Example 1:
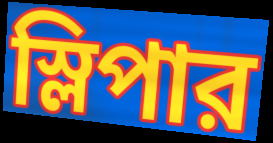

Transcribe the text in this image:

স্লিপার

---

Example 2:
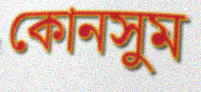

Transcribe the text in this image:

কোনসুম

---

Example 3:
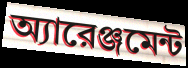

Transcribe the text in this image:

অ্যারেঞ্জমেন্ট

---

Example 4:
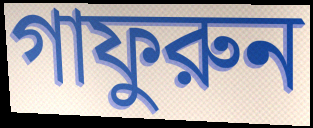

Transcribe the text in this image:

গাফুরুন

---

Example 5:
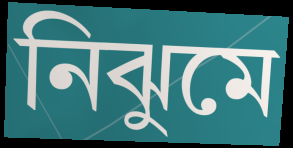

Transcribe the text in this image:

নিঝুমে